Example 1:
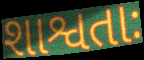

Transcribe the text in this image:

શાશ્વતાઃ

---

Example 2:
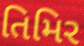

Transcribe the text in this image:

તિમિર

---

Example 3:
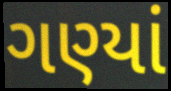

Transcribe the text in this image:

ગણ્યાં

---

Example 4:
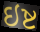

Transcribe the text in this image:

ઇષ્ટ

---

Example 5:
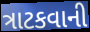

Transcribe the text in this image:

ત્રાટકવાની